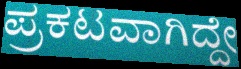
ಪ್ರಕಟವಾಗಿದ್ದೇ